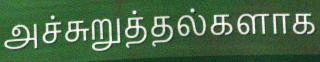
அச்சுறுத்தல்களாக